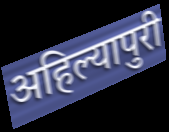
अहिल्यापुरी